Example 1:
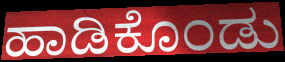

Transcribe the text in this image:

ಹಾಡಿಕೊಂಡು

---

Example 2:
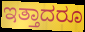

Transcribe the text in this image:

ಇತ್ತಾದರೂ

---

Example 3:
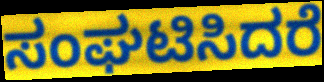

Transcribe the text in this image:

ಸಂಘಟಿಸಿದರೆ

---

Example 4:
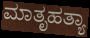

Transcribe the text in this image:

ಮಾತೃಹತ್ಯಾ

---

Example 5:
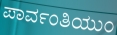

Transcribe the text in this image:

ಪಾರ್ವಂತಿಯುಂ